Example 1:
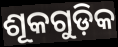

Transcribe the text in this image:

ଶୂକଗୁଡ଼ିକ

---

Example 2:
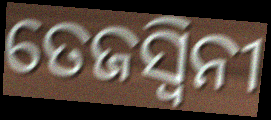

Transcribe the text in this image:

ତେଜସ୍ଵିନୀ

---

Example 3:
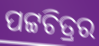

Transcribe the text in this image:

ପଟ୍ଟଚିତ୍ରର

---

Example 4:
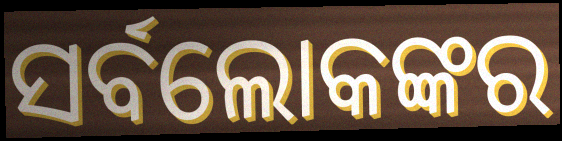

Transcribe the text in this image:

ସର୍ବଲୋକଙ୍କର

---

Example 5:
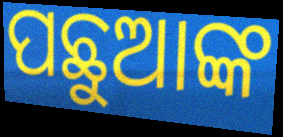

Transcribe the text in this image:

ପଛୁଆଙ୍କ